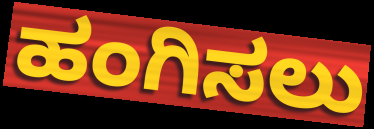
ಹಂಗಿಸಲು